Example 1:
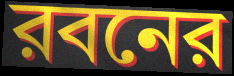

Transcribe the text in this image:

রবনের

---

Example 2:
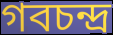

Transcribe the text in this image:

গবচন্দ্র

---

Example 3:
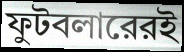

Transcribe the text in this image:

ফুটবলারেরই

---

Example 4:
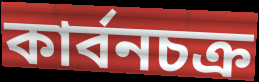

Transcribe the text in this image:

কার্বনচক্র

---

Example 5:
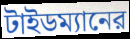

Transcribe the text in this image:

টাইডম্যানের